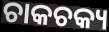
ଚାକଚକ୍ୟ